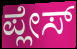
ಪ್ಲೇಸ್